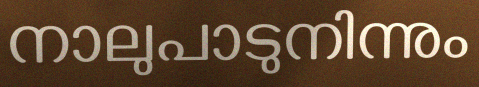
നാലുപാടുനിന്നും